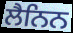
ਲੈਨਿਨ